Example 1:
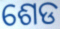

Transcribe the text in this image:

ଶେଡ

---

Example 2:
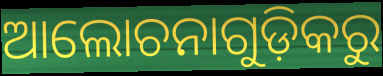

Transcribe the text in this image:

ଆଲୋଚନାଗୁଡ଼ିକରୁ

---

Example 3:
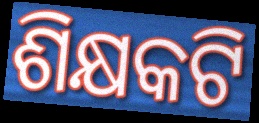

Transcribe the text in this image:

ଶିକ୍ଷକଟି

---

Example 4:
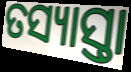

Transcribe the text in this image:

ତସ୍ୟାସ୍ତା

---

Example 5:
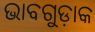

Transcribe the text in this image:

ଭାବଗୁଡ଼ାକ